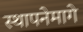
स्थापनेमागे